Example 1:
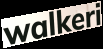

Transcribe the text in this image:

walkeri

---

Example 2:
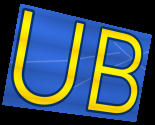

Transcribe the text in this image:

UB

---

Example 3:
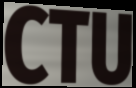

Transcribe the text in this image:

CTU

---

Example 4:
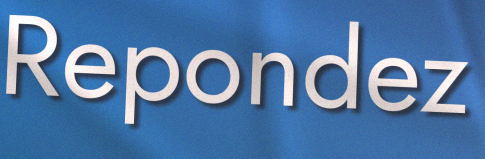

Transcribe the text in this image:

Repondez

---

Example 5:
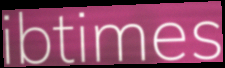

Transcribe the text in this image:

ibtimes